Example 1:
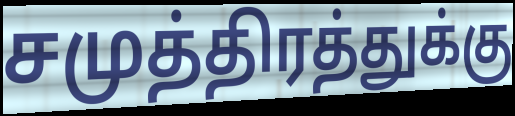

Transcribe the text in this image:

சமுத்திரத்துக்கு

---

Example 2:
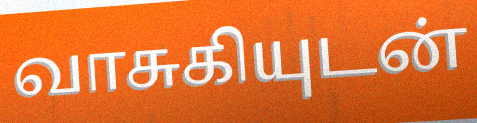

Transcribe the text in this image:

வாசுகியுடன்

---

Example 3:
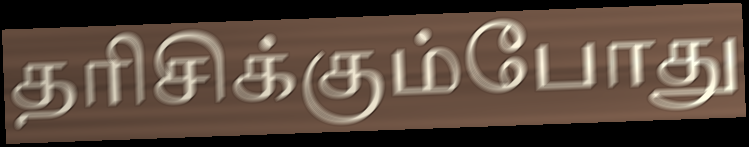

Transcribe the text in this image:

தரிசிக்கும்போது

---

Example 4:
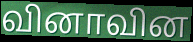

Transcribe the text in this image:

வினாவின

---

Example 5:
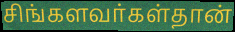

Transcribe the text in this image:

சிங்களவர்கள்தான்